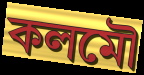
কলমৌ